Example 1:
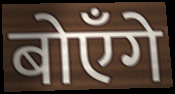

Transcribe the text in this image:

बोएँगे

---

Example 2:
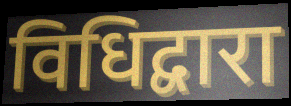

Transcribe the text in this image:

विधिद्वारा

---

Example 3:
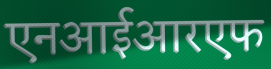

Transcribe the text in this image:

एनआईआरएफ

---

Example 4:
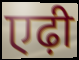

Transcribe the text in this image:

एढ़ी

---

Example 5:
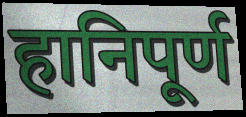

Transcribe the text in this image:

हानिपूर्ण